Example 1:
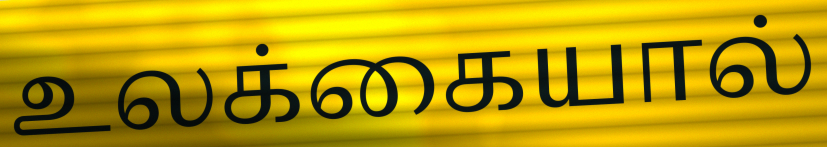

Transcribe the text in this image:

உலக்கையால்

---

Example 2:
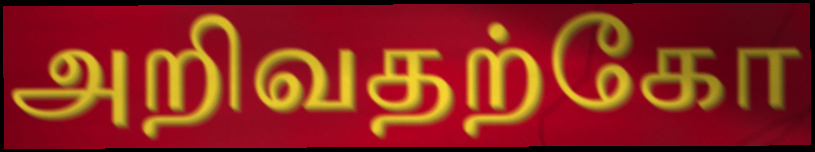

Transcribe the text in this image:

அறிவதற்கோ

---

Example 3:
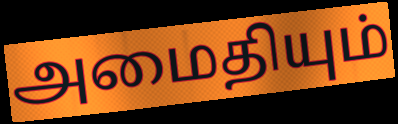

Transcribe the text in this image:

அமைதியும்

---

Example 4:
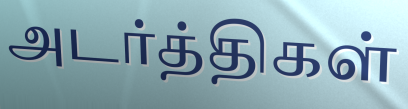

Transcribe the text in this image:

அடர்த்திகள்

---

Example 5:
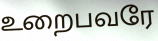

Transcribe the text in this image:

உறைபவரே